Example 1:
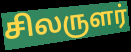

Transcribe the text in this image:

சிலருளர்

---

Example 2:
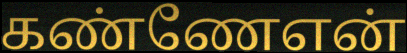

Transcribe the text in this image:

கண்ணேஎன்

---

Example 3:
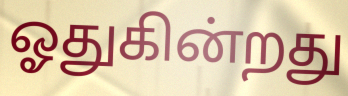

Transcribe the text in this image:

ஓதுகின்றது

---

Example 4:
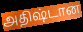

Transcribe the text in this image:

அதிஷ்டான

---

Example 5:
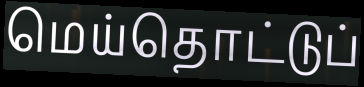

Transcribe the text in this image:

மெய்தொட்டுப்